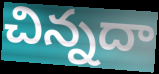
చిన్నదా